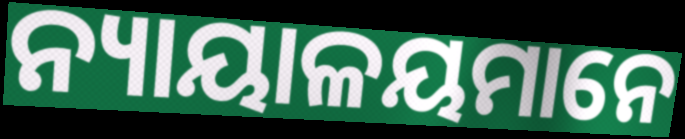
ନ୍ୟାୟାଳୟମାନେ